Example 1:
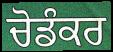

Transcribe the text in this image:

ਚੋਡੰਕਰ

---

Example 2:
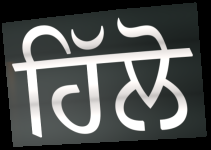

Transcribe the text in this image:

ਹਿੱਲੋ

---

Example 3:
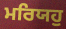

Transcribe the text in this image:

ਮਰਿਯਹੁ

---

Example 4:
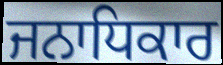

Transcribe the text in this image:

ਜਨਾਧਿਕਾਰ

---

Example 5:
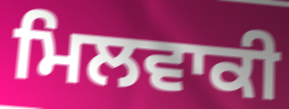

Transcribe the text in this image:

ਮਿਲਵਾਕੀ